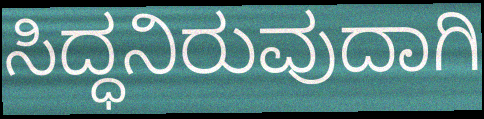
ಸಿದ್ಧನಿರುವುದಾಗಿ